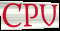
CPU